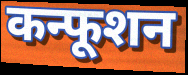
कन्फूशन